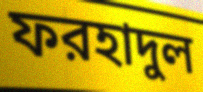
ফরহাদুল